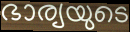
ഭാര്യയുടെ